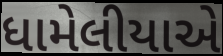
ધામેલીયાએ